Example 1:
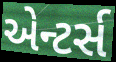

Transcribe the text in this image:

એન્ટર્સ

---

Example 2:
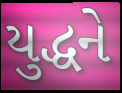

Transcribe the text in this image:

યુદ્ધને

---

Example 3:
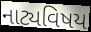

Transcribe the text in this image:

નાટ્યવિષય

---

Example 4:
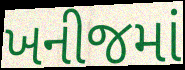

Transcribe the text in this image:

ખનીજમાં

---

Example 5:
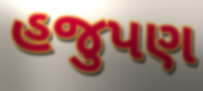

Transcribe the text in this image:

હજુપણ